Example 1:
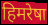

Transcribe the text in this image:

हिमरेषा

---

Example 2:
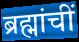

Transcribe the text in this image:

ब्रह्मांचीं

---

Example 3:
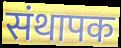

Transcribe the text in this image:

संथापक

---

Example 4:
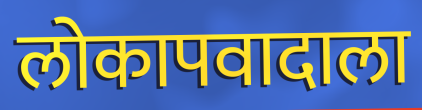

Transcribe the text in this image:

लोकापवादाला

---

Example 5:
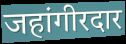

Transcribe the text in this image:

जहांगीरदार